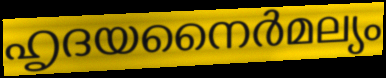
ഹൃദയനൈർമല്യം